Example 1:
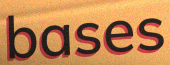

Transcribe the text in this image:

bases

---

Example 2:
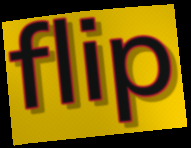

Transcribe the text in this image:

flip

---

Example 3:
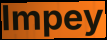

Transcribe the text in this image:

Impey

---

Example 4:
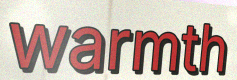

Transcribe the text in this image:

warmth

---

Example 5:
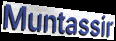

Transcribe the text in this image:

Muntassir